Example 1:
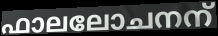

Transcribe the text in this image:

ഫാലലോചനന്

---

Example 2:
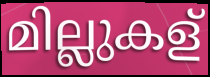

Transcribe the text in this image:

മില്ലുകള്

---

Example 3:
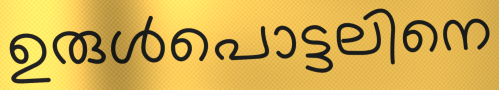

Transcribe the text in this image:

ഉരുൾപൊട്ടലിനെ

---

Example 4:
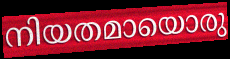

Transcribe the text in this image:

നിയതമായൊരു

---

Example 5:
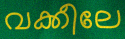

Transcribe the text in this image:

വക്കീലേ